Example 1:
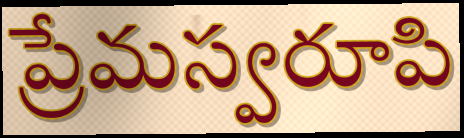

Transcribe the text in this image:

ప్రేమస్వరూపి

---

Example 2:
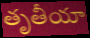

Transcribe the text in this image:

తృతీయా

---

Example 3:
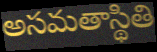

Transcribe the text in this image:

అసమతాస్థితి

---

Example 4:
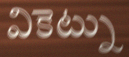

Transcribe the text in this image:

వికెట్ను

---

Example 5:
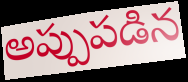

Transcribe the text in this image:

అప్పుపడిన